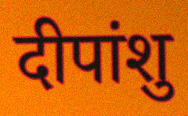
दीपांशु